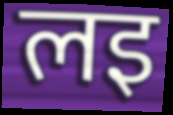
लइ